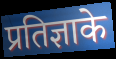
प्रतिज्ञाके